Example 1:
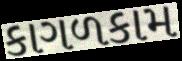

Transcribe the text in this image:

કાગળકામ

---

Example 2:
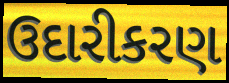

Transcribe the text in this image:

ઉદારીકરણ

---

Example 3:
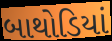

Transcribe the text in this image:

બાથોડિયાં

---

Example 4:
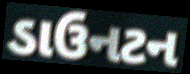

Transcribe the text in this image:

ડાઉનટન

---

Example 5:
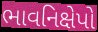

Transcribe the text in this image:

ભાવનિક્ષેપો